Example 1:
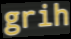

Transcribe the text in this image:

grih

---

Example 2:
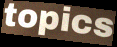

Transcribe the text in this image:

topics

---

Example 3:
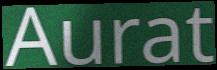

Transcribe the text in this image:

Aurat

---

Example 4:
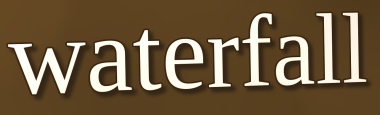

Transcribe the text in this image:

waterfall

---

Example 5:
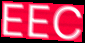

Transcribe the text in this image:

EEC